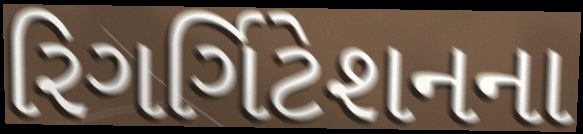
રિગર્ગિટેશનના